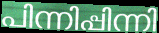
പിന്നിപ്പിന്നി